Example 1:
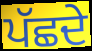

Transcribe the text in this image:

ਪੱਛਦੇ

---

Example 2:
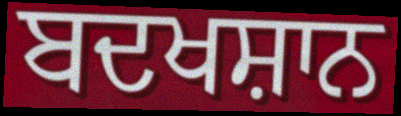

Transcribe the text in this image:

ਬਦਖਸ਼ਾਨ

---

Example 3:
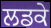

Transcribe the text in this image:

ਲਡਕੇ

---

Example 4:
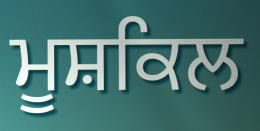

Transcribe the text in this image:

ਮੂਸ਼ਕਿਲ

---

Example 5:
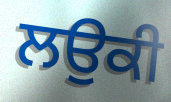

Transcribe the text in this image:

ਲਉਕੀ